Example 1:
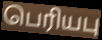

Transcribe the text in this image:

பெரியபு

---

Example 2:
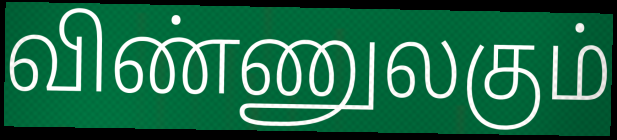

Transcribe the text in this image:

விண்ணுலகும்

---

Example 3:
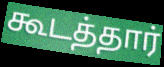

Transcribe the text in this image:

கூடத்தார்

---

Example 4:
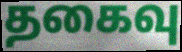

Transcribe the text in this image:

தகைவு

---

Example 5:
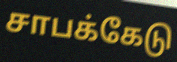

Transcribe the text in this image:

சாபக்கேடு